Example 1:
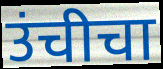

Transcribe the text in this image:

उंचीचा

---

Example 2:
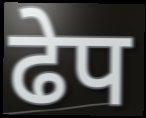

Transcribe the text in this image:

ढेप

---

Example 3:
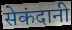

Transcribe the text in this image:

सेकंदानी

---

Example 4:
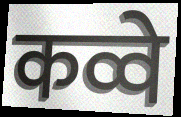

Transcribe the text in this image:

कव्वे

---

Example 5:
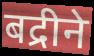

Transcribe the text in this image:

बद्रीने